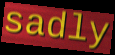
sadly